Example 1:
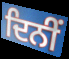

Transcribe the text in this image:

ਦਿਨੀਂ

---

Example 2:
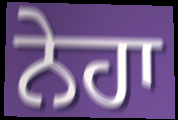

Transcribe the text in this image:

ਨੇਹਾ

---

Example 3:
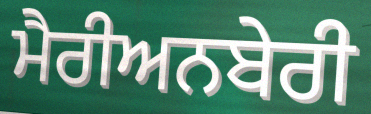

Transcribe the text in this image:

ਮੈਰੀਅਨਬੇਰੀ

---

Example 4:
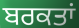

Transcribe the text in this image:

ਬਰਕਤਾਂ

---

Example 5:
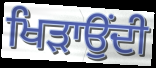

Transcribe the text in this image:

ਖਿੜਾਉਂਦੀ